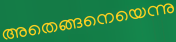
അതെങ്ങനെയെന്നു